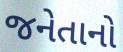
જનેતાનો